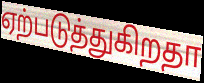
ஏற்படுத்துகிறதா